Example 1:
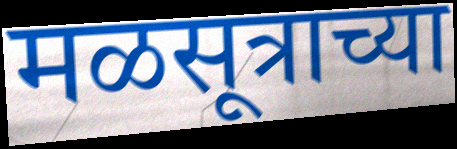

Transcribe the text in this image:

मळसूत्राच्या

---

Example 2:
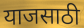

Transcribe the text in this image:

याजसाठी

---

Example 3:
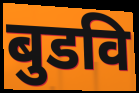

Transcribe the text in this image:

बुडवि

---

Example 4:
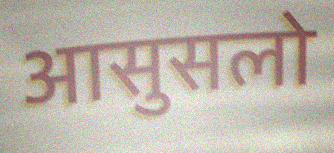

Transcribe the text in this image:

आसुसलो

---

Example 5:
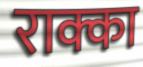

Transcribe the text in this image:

राक्का